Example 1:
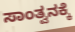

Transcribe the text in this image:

ಸಾಂತ್ವನಕ್ಕೆ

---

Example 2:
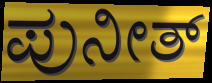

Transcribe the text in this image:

ಪುನೀತ್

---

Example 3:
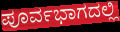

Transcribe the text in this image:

ಪೂರ್ವಭಾಗದಲ್ಲಿ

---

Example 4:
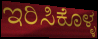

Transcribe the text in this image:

ಇರಿಸಿಕೊಳ್ಳ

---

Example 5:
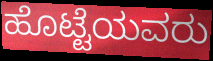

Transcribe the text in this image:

ಹೊಟ್ಟೆಯವರು